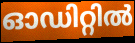
ഓഡിറ്റിൽ